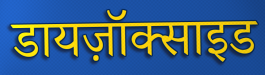
डायज़ॉक्साइड